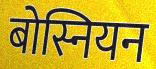
बोस्नियन